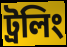
ট্রলিং